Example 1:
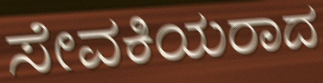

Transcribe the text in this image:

ಸೇವಕಿಯರಾದ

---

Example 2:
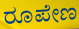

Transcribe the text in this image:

ರೂಪೇಣ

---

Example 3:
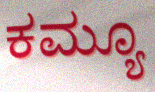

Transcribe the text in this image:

ಕಮ್ಯೂ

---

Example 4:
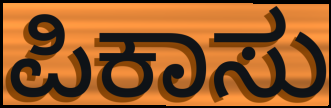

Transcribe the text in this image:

ಪಿಕಾಸು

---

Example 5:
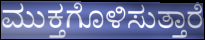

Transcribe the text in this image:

ಮುಕ್ತಗೊಳಿಸುತ್ತಾರೆ